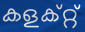
കളക്റ്റ്